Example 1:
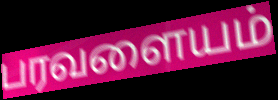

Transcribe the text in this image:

பரவளையம்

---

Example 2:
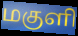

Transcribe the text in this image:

மகுளி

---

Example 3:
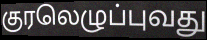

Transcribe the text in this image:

குரலெழுப்புவது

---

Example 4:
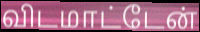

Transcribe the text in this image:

விடமாட்டேன்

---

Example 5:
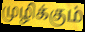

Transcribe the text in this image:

முழிக்கும்